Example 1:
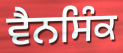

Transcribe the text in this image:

ਵੈਨਸਿੰਕ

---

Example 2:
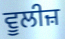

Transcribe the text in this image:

ਵੂਲੀਜ਼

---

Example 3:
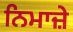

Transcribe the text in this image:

ਨਿਮਾਜ਼ੇ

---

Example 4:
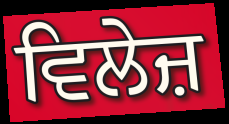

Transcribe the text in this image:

ਵਿਲੇਜ਼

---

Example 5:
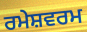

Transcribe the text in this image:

ਰਮੇਸ਼ਵਰਮ